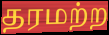
தரமற்ற